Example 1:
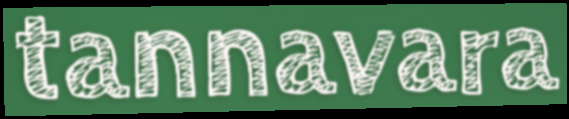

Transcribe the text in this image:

tannavara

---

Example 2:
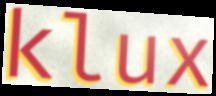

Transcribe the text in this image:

klux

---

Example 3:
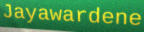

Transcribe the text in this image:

Jayawardene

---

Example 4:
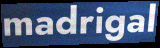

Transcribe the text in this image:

madrigal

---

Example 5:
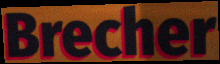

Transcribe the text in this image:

Brecher